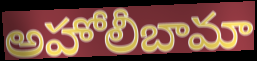
అహోలీబామా